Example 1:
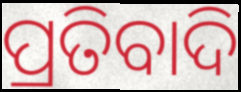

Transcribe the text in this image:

ପ୍ରତିବାଦି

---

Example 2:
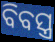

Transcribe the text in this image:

ବିବସ୍ତ୍ର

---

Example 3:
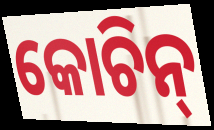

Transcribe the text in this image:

କୋଚିନ୍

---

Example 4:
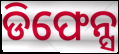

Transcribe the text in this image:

ଡିଫେନ୍ସ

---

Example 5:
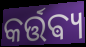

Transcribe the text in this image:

କର୍ତ୍ତଵ୍ୟ